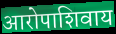
आरोपाशिवाय